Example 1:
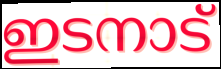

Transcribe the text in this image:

ഇടനാട്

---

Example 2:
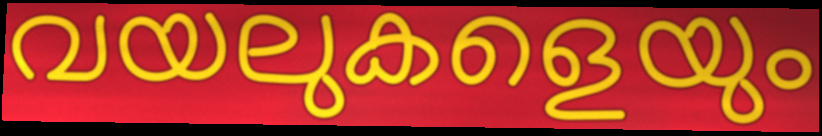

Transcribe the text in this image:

വയലുകളെയും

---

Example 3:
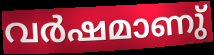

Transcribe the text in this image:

വർഷമാണു്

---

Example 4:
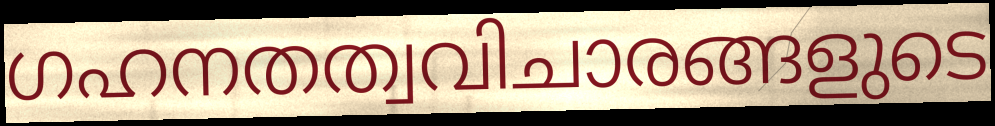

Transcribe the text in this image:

ഗഹനതത്വവിചാരങ്ങളുടെ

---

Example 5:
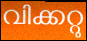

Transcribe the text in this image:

വിക്കറ്റു